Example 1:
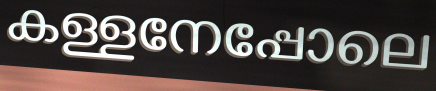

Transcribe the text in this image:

കള്ളനേപ്പോലെ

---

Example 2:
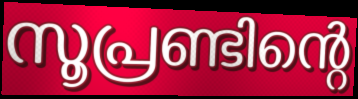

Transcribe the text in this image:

സൂപ്രണ്ടിന്റെ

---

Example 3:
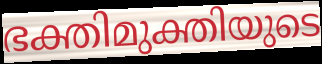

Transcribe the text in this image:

ഭക്തിമുക്തിയുടെ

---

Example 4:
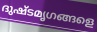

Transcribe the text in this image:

ദുഷ്ടമൃഗങ്ങളെ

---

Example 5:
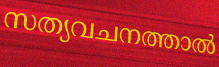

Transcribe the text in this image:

സത്യവചനത്താൽ